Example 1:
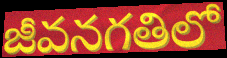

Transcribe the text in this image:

జీవనగతిలో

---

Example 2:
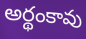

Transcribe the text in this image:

అర్థంకావు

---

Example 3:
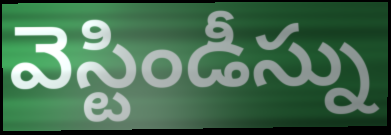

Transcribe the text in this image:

వెస్టిండీస్ను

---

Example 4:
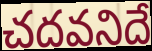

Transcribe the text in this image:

చదవనిదే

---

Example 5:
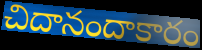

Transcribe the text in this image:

చిదానందాకారం